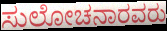
ಸುಲೋಚನಾರವರು